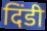
दिंडी